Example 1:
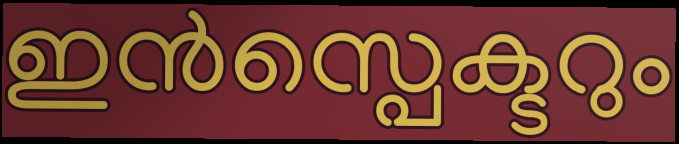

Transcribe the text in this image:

ഇൻസ്പെക്ടറും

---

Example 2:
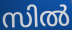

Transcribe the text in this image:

സിൽ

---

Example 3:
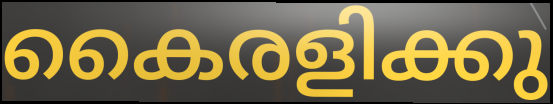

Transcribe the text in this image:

കൈരളിക്കു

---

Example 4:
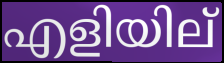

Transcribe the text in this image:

എളിയില്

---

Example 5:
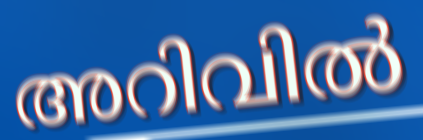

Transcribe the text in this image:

അറിവിൽ